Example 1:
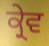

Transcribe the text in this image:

ਕ੍ਰੇਵ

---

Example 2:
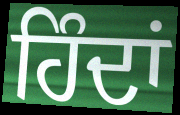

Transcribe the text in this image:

ਹਿੰਦਾਂ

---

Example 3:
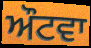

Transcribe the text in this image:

ਔਟਵਾ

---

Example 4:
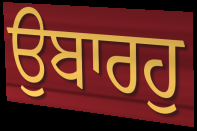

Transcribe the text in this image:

ਉਬਾਰਹੁ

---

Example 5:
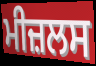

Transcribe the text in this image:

ਮੀਜ਼ਲਸ